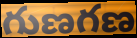
గుణగణ